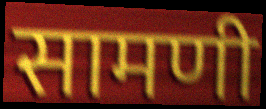
सामणी